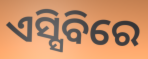
ଏସ୍ସିବିରେ